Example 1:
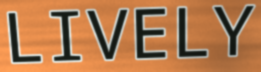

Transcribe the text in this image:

LIVELY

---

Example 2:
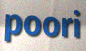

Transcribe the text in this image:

poori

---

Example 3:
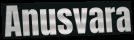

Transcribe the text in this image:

Anusvara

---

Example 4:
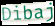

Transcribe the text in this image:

Dibaj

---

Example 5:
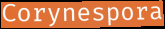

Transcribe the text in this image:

Corynespora